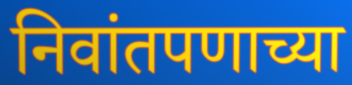
निवांतपणाच्या